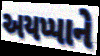
અયપ્પાને